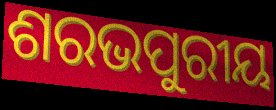
ଶରଭପୁରୀୟ